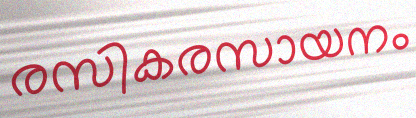
രസികരസായനം